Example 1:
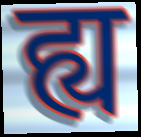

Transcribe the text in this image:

ह्य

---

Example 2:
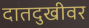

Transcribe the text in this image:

दातदुखीवर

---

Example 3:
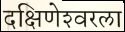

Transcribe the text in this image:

दक्षिणेश्वरला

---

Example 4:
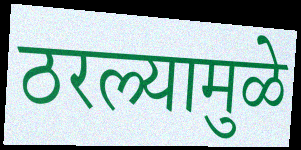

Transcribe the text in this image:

ठरल्यामुळे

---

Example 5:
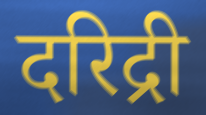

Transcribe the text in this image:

दरिद्री